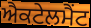
ਐਕਟੇਲਮੈਂਟ